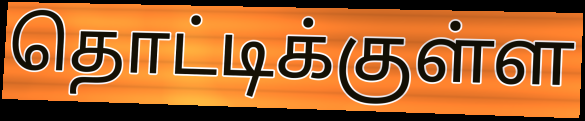
தொட்டிக்குள்ள